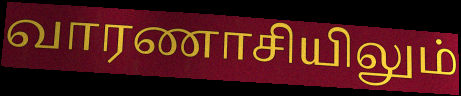
வாரணாசியிலும்